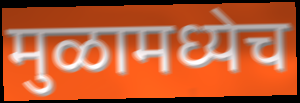
मुळामध्येच